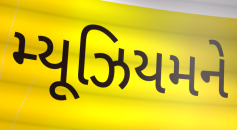
મ્યૂઝિયમને